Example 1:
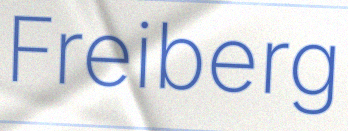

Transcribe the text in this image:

Freiberg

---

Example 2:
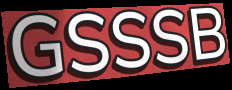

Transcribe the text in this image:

GSSSB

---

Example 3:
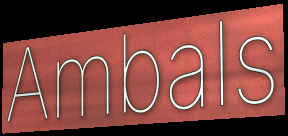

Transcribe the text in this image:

Ambals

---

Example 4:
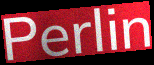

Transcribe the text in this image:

Perlin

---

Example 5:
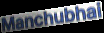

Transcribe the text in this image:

Manchubhai